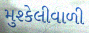
મુશ્કેલીવાળી